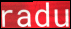
radu